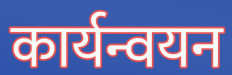
कार्यन्वयन